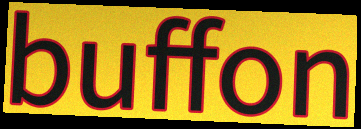
buffon